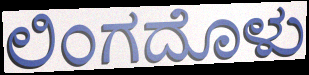
ಲಿಂಗದೊಳು